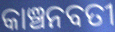
କାଞ୍ଚନବତୀ